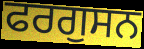
ਫਰਗੁਸਨ